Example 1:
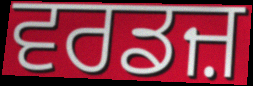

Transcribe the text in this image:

ਵਰਡਜ਼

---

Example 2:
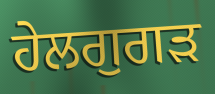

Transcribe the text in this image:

ਹੇਲਗੁਗੜ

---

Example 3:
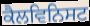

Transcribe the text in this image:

ਕੈਲਵਿਨਿਸਟ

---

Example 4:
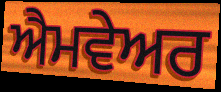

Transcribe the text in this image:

ਐਮਵੇਅਰ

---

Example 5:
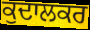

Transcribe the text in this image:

ਕੁਦਾਲਕਰ